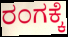
ರಂಗಕ್ಕೆ